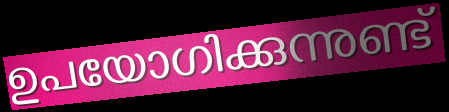
ഉപയോഗിക്കുന്നുണ്ട്